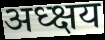
अध्क्षय